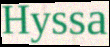
Hyssa